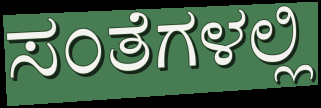
ಸಂತೆಗಳಲ್ಲಿ